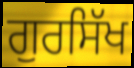
ਗੁਰਸਿੱਖ